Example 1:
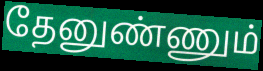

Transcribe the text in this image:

தேனுண்ணும்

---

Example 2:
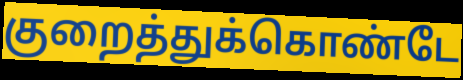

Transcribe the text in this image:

குறைத்துக்கொண்டே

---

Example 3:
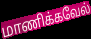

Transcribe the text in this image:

மாணிக்கவேல்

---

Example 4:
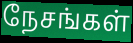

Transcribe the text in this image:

நேசங்கள்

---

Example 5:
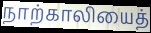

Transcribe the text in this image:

நாற்காலியைத்